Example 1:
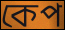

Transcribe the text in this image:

কেপ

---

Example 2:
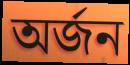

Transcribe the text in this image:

অৰ্জন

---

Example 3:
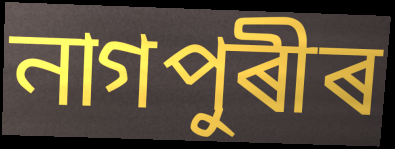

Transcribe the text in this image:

নাগপুৰীৰ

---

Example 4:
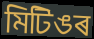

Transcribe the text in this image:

মিটিঙৰ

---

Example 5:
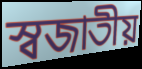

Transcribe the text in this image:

স্বজাতীয়